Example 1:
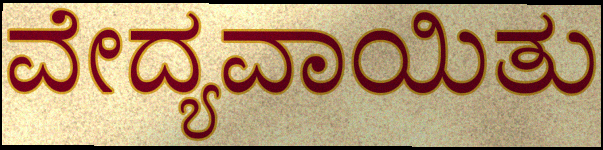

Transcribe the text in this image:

ವೇದ್ಯವಾಯಿತು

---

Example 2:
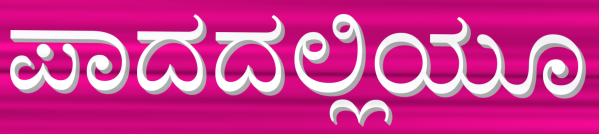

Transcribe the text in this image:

ಪಾದದಲ್ಲಿಯೂ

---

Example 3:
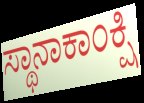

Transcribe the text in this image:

ಸ್ಥಾನಾಕಾಂಕ್ಷಿ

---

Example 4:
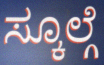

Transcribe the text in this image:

ಸ್ಕೂಲ್ಗೆ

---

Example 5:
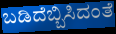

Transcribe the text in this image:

ಬಡಿದೆಬ್ಬಿಸಿದಂತೆ